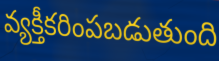
వ్యక్తీకరింపబడుతుంది